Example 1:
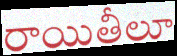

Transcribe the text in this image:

రాయితీలూ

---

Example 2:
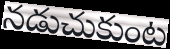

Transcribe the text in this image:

నడుచుకుంట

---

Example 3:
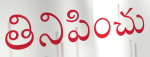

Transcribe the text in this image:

తినిపించు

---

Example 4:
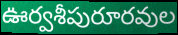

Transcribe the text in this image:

ఊర్వశీపురూరవుల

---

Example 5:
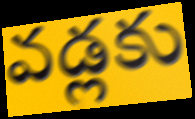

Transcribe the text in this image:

వడ్లకు